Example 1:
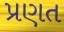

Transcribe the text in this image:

પ્રણત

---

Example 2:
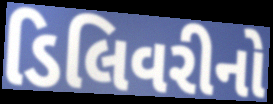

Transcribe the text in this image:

ડિલિવરીનો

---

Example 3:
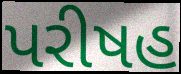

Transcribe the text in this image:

પરીષહ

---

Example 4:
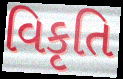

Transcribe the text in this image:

વિકૃતિ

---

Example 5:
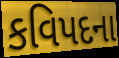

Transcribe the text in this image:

કવિપદના